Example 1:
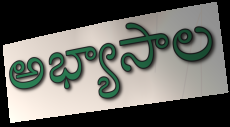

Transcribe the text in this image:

అభ్యాసాల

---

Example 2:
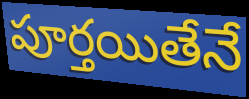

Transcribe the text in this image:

పూర్తయితేనే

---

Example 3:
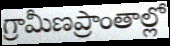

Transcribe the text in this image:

గ్రామీణప్రాంతాల్లో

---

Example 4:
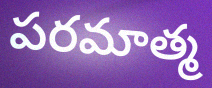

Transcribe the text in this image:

పరమాత్మ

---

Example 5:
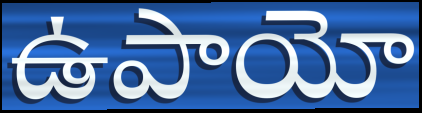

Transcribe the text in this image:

ఉపాయో